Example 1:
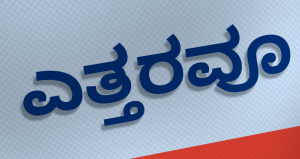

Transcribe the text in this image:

ಎತ್ತರವೂ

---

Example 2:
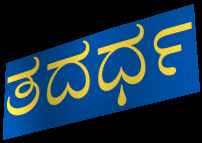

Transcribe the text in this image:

ತದರ್ಧ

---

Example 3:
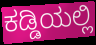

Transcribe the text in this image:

ಕಡ್ಡಿಯಲ್ಲಿ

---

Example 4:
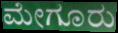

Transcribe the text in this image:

ಮೇಗೂರು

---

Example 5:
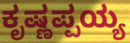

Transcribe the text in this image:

ಕೃಷ್ಣಪ್ಪಯ್ಯ